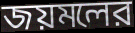
জয়মলের